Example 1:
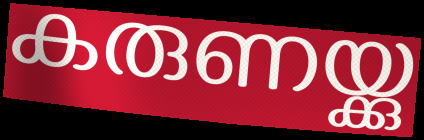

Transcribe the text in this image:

കരുണയ്ക്കു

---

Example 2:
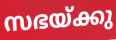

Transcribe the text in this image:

സഭയ്ക്കു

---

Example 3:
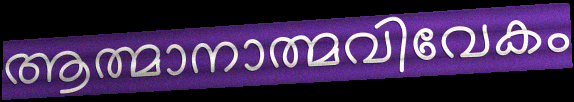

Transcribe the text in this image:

ആത്മാനാത്മവിവേകം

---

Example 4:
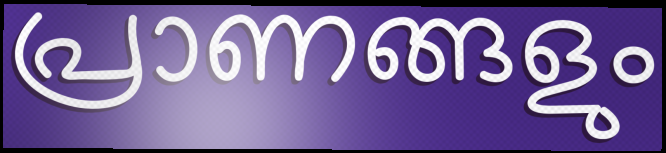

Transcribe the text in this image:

പ്രാണങ്ങളും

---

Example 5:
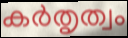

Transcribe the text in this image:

കർതൃത്വം